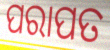
ପରାପତ